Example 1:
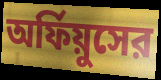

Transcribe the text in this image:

অর্ফিয়ুসের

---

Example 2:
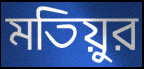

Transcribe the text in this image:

মতিয়ুর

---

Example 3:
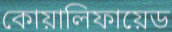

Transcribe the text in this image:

কোয়ালিফায়েড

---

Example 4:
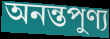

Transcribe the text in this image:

অনন্তপুণ্য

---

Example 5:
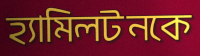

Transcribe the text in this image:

হ্যামিলটনকে